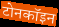
टोनकॉइन